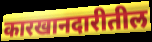
कारखानदारीतील